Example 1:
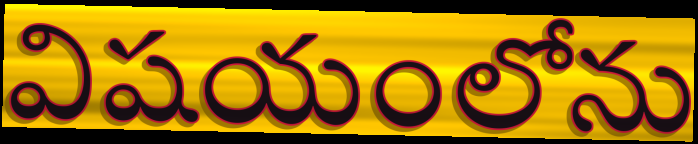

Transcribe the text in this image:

విషయంలోను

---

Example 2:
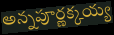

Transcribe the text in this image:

అన్నపూర్ణక్కయ్య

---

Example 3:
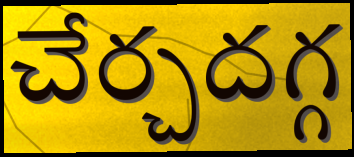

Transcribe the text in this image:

చేర్చదగ్గ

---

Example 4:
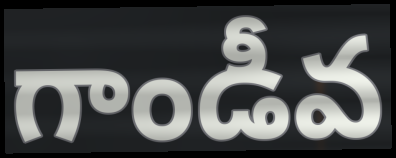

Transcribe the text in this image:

గాండీవ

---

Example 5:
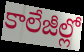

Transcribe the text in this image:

కాలేజీల్లో